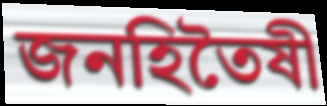
জনহিতৈষী